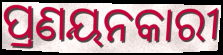
ପ୍ରଣୟନକାରୀ